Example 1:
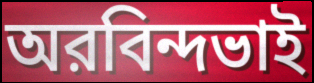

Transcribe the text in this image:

অরবিন্দভাই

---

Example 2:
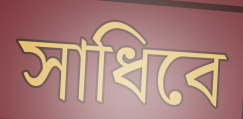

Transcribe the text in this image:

সাধিবে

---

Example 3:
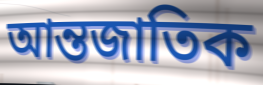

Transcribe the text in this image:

আন্তজাতিক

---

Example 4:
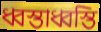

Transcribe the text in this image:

ধ্বস্তাধ্বস্তি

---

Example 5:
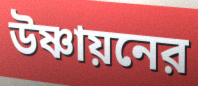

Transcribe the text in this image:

উষ্ণায়নের